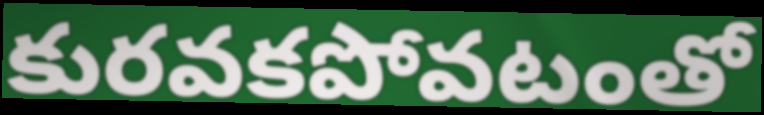
కురవకపోవటంతో